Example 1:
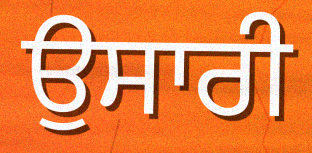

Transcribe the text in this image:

ਉਸਾਰੀ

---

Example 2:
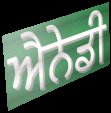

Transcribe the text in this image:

ਐਨੇਡੀ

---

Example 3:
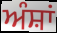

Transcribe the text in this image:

ਅੰਸ਼ਾਂ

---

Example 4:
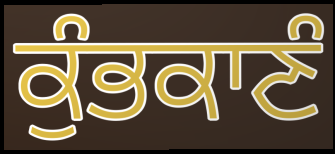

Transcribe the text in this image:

ਕੁੰਭਕਾਣੰ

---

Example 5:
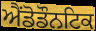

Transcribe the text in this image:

ਐਂਡੋਡੌਨਟਿਕ